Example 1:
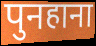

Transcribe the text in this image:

पुनहाना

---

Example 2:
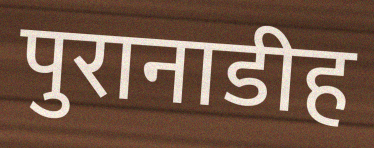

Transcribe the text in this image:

पुरानाडीह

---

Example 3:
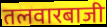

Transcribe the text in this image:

तलवारबाजी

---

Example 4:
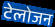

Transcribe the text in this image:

टेलोजन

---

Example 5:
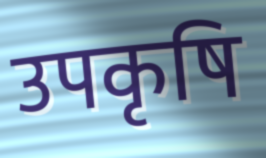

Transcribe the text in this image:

उपकृषि